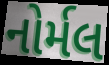
નોર્મલ